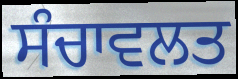
ਸੰਚਾਵਲਤ